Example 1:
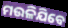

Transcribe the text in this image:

ମଉଳିଯିବେ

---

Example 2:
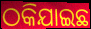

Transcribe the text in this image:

ଠକିଯାଇଛ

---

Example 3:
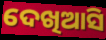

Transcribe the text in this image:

ଦେଖିଆସି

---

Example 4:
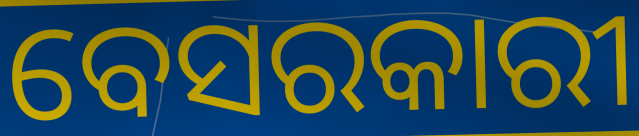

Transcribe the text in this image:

ବେସରକାରୀ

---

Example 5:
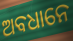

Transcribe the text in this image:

ଅବଧାନେ